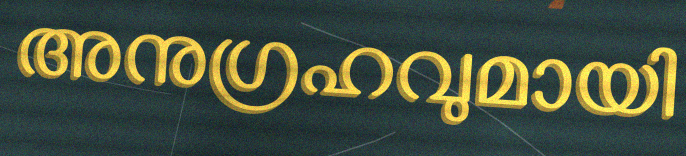
അനുഗ്രഹവുമായി